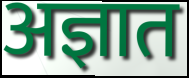
अज्ञात